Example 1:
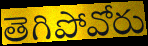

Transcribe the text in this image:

తెగిపోవోరు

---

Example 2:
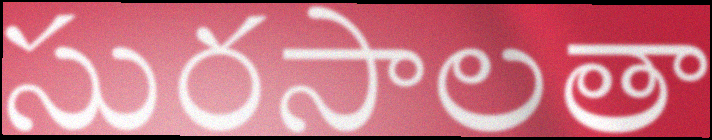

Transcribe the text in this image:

సురసాలతా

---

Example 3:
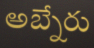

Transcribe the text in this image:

అబ్నేరు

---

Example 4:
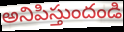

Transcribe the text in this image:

అనిపిస్తుందండి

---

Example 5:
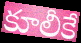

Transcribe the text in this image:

కూలీకే